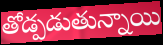
తోడ్పడుతున్నాయి